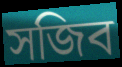
সজিব